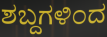
ಶಬ್ದಗಳಿಂದ